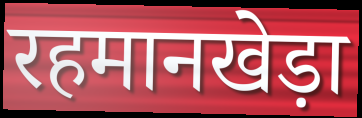
रहमानखेड़ा